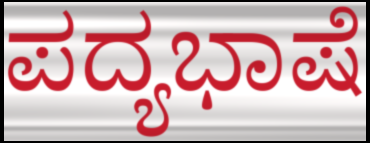
ಪದ್ಯಭಾಷೆ